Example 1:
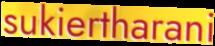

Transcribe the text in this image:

sukiertharani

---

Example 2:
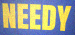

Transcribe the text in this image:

NEEDY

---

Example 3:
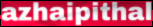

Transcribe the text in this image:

azhaipithal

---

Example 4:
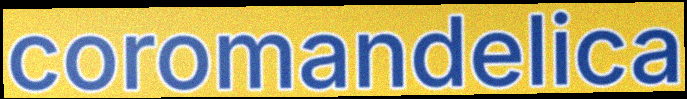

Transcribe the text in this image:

coromandelica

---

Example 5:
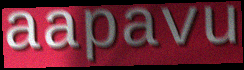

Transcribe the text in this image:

aapavu